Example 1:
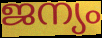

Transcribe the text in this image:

ജന്യം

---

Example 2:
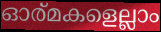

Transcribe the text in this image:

ഓര്മകളെല്ലാം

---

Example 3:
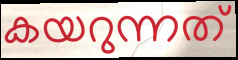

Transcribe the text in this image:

കയറുന്നത്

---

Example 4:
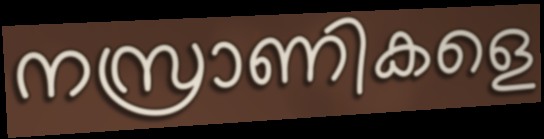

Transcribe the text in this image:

നസ്രാണികളെ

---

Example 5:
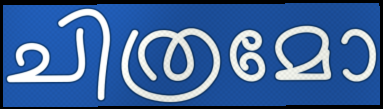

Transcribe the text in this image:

ചിത്രമോ